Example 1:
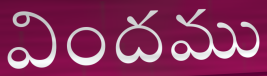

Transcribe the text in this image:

విందము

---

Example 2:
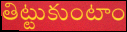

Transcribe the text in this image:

తిట్టుకుంటాం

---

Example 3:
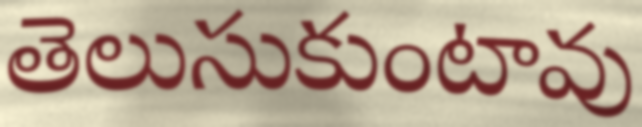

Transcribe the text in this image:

తెలుసుకుంటావు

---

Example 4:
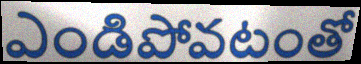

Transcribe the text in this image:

ఎండిపోవటంతో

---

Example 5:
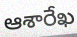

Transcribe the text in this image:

ఆశారేఖ